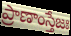
ప్రాణాంస్తేజః